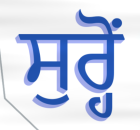
ਸੁਰ੍ਹੋਂ